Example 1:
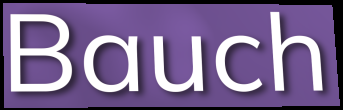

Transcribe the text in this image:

Bauch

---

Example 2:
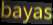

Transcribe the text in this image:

bayas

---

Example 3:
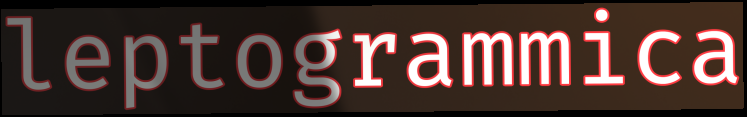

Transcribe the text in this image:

leptogrammica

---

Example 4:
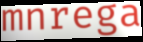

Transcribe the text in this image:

mnrega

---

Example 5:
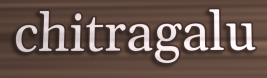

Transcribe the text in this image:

chitragalu